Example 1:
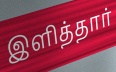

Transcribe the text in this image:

இளித்தார்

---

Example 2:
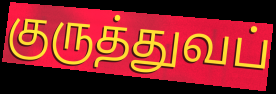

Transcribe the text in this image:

குருத்துவப்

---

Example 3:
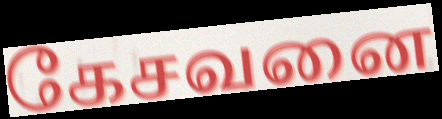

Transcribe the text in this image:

கேசவனை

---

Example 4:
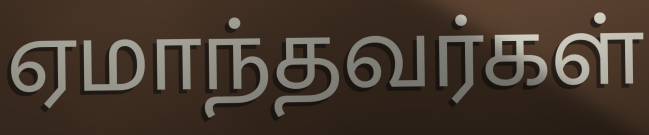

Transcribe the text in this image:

ஏமாந்தவர்கள்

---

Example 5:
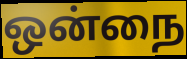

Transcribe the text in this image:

ஒன்நை